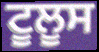
ਟੂਲੂਸ